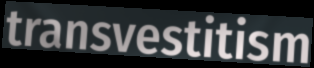
transvestitism